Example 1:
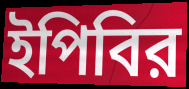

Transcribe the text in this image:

ইপিবির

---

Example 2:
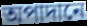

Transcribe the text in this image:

অপাদানে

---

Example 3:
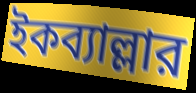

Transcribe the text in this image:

ইকব্যাল্লার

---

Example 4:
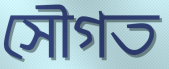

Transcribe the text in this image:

সৌগত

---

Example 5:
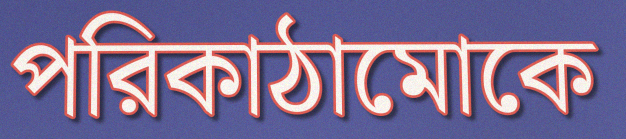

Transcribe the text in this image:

পরিকাঠামোকে